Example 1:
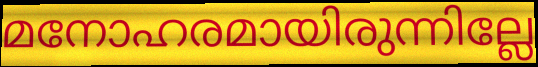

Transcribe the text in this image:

മനോഹരമായിരുന്നില്ലേ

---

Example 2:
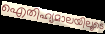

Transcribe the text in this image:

ഐതിഹ്യമാലയിലൂടെ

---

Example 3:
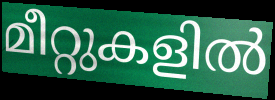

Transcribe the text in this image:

മീറ്റുകളിൽ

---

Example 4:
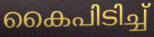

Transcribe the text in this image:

കൈപിടിച്ച്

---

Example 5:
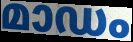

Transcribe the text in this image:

മാഡം